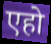
एहो